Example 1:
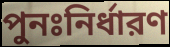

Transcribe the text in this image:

পুনঃনির্ধারণ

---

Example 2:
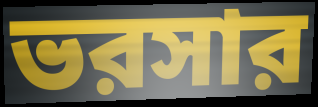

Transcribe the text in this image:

ভরসার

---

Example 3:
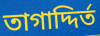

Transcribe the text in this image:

তাগাদ্দির্ত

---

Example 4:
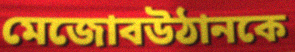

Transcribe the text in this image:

মেজোবউঠানকে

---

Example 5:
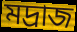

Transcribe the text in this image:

মদ্রাজ